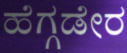
ಹೆಗ್ಗಡೇರ